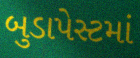
બુડાપેસ્ટમાં